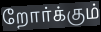
றோர்க்கும்